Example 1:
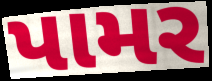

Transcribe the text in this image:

પામર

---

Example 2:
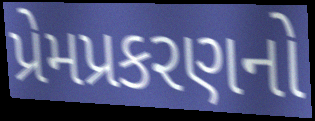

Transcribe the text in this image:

પ્રેમપ્રકરણનો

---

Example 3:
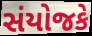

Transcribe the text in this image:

સંયોજકે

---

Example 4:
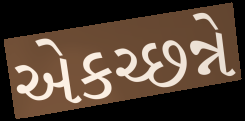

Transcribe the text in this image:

એકચ્છન્ને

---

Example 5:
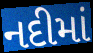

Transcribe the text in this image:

નદીમાં